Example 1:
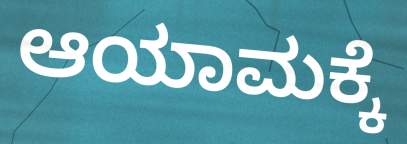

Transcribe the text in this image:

ಆಯಾಮಕ್ಕೆ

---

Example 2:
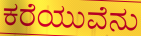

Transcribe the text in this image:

ಕರೆಯುವೆನು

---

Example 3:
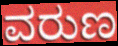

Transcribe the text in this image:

ವರುಣ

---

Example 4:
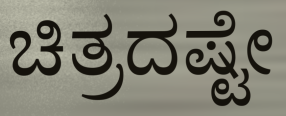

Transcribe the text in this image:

ಚಿತ್ರದಷ್ಟೇ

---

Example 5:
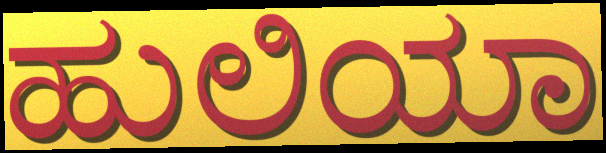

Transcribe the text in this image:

ಹುಲಿಯಾ